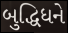
બુદ્ધિધને